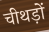
चीथड़ों